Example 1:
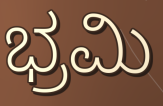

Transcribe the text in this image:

ಭ್ರಮಿ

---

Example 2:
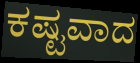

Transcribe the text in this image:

ಕಷ್ಟವಾದ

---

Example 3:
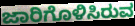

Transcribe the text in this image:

ಜಾರಿಗೊಳಿಸಿರುವ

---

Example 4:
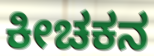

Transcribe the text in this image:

ಕೀಚಕನ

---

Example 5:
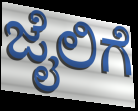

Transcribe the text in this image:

ಜೈಲಿಗೆ